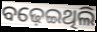
ବଢ଼େଇଥିଲି